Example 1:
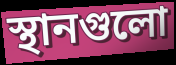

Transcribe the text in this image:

স্থানগুলো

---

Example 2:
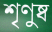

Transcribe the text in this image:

শৃণুষ্ব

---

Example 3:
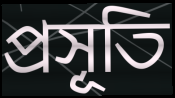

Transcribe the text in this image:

প্রসূতি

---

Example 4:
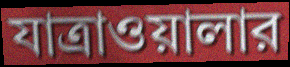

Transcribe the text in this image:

যাত্রাওয়ালার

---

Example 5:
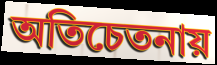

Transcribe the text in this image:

অতিচেতনায়